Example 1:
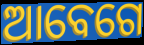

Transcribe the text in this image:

ଆବେଗେ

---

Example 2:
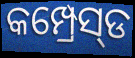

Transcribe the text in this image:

କମ୍ପ୍ରେସ୍‌ଡ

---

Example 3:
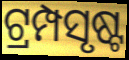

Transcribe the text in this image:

ଟ୍ରମ୍ପସୃଷ୍ଟ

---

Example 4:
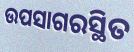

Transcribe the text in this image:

ଉପସାଗରସ୍ଥିତ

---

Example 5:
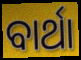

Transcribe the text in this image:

ବାର୍ଥା